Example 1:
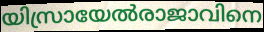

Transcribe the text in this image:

യിസ്രായേൽരാജാവിനെ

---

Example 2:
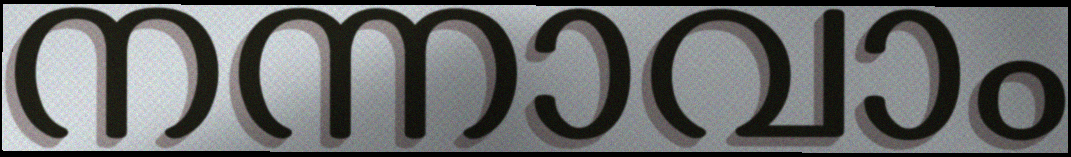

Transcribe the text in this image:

നന്നാവാം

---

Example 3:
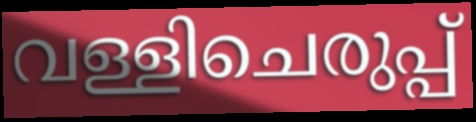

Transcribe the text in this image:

വള്ളിചെരുപ്പ്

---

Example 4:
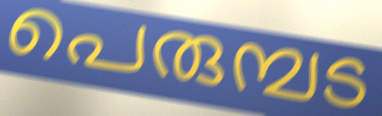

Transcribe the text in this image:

പെരുമ്പട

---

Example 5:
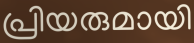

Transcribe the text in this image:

പ്രിയരുമായി